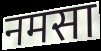
नमसा